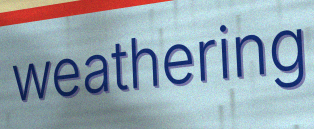
weathering